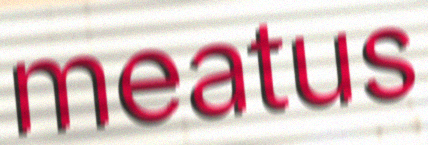
meatus